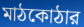
মাঠকোঠার